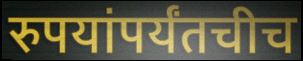
रुपयांपर्यंतचीच